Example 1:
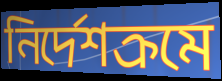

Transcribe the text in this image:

নির্দেশক্রমে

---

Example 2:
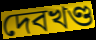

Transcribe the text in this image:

দেবখণ্ড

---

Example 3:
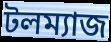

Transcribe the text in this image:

টলম্যাজ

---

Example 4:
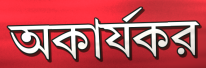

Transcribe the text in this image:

অকার্যকর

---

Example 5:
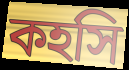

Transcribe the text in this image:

কহসি